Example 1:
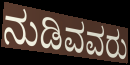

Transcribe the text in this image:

ನುಡಿವವರು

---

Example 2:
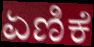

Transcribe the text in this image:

ಏಣಿಕೆ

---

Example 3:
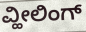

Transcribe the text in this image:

ವ್ಹೀಲಿಂಗ್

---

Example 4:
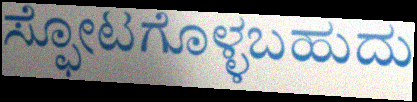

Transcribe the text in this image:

ಸ್ಫೋಟಗೊಳ್ಳಬಹುದು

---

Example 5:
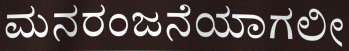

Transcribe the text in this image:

ಮನರಂಜನೆಯಾಗಲೀ